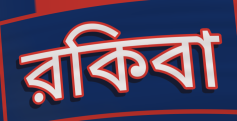
রকিবা